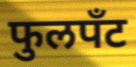
फुलपँट